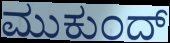
ಮುಕುಂದ್